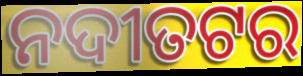
ନଦୀତଟର